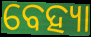
ବେହ୍ୟା